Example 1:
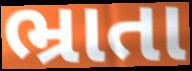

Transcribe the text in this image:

ભ્રાતા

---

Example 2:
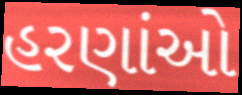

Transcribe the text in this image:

હરણાંઓ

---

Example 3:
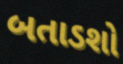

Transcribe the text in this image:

બતાડશો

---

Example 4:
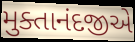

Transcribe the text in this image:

મુક્તાનંદજીએ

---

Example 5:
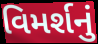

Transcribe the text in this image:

વિમર્શનું